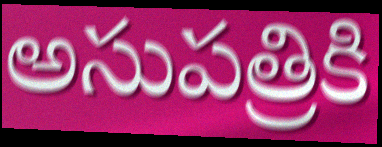
అసుపత్రికి